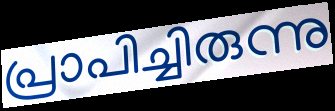
പ്രാപിച്ചിരുന്നു